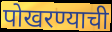
पोखरण्याची